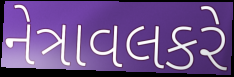
નેત્રાવલકરે